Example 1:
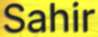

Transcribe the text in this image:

Sahir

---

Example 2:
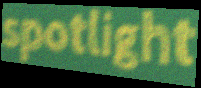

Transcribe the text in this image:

spotlight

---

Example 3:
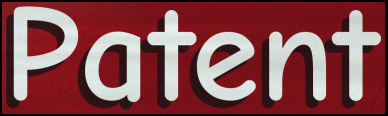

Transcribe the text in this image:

Patent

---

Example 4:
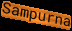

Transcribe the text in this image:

Sampurna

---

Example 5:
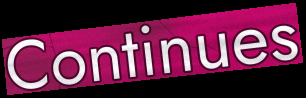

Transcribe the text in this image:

Continues